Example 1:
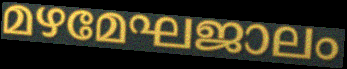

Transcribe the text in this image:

മഴമേഘജാലം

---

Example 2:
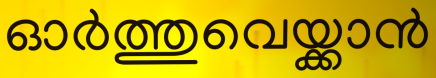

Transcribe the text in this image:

ഓർത്തുവെയ്ക്കാൻ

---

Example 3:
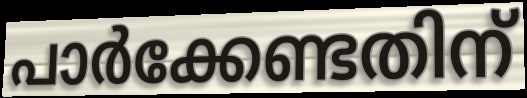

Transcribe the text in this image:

പാർക്കേണ്ടതിന്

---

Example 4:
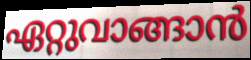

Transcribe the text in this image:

ഏറ്റുവാങ്ങാൻ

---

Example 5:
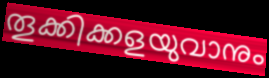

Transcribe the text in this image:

തൂക്കിക്കളയുവാനും